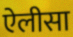
ऐलीसा